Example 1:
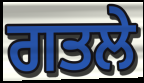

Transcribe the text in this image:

ਗਤਲੇ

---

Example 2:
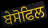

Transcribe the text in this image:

ਬੇਸੋਫਿਲ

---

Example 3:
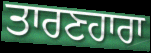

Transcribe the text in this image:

ਤਾਰਣਹਾਰਾ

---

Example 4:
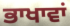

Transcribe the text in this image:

ਭਾਖਾਵਾਂ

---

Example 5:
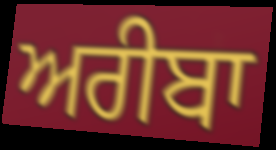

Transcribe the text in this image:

ਅਰੀਬਾ